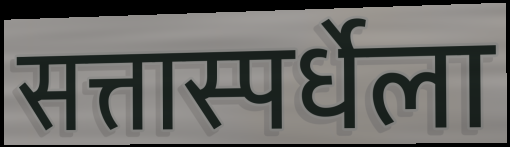
सत्तास्पर्धेला